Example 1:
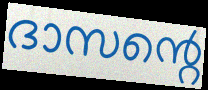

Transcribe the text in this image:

ദാസന്റെ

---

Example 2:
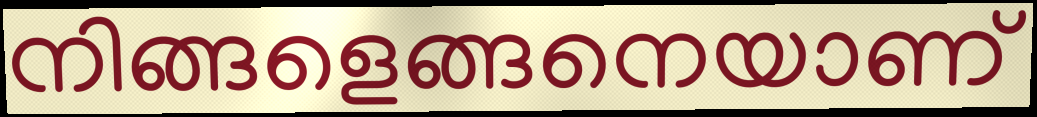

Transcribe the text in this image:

നിങ്ങളെങ്ങനെയാണ്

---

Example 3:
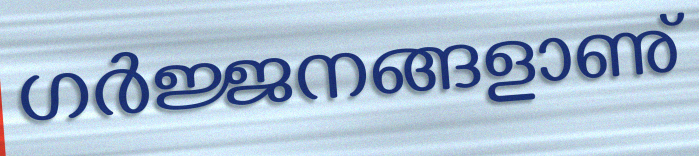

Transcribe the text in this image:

ഗർജ്ജനങ്ങളാണു്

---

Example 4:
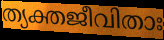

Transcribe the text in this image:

ത്യക്തജീവിതാഃ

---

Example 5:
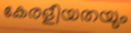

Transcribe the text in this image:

കേരളീയതയും